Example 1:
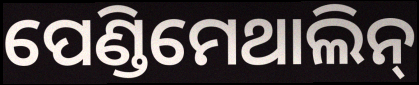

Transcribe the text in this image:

ପେଣ୍ଡିମେଥାଲିନ୍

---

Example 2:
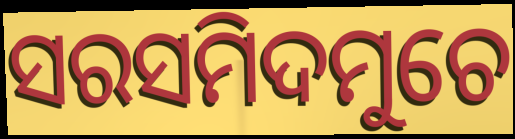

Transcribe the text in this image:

ସରସମିଦମୁଚେ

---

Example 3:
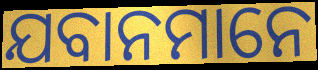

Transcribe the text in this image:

ଯବାନମାନେ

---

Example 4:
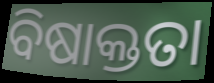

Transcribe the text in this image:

ବିଷାକ୍ତତା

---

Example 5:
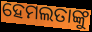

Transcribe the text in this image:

ହେମଲତାଙ୍କୁ